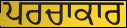
ਪਰਚਾਕਾਰ